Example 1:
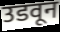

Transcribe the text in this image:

उडवून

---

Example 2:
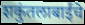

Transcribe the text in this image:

शकुंतलाबाईंचे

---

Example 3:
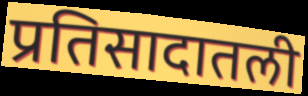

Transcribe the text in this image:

प्रतिसादातली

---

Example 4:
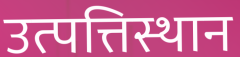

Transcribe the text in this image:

उत्पत्तिस्थान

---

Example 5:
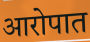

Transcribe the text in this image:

आरोपात